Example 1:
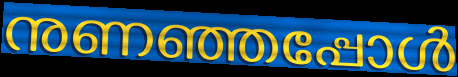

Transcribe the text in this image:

നുണഞ്ഞപ്പോൾ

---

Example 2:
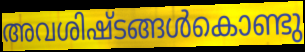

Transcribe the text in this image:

അവശിഷ്ടങ്ങൾകൊണ്ടു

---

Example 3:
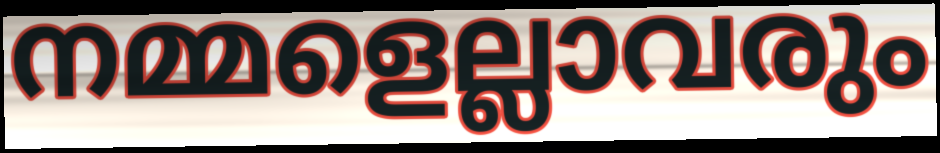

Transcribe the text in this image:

നമ്മളെല്ലാവരും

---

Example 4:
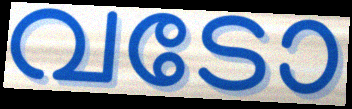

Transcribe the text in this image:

വടോ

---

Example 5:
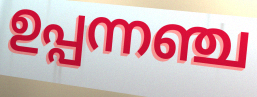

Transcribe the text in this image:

ഉപ്പന്നഞ്ച